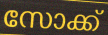
സോക്ക്